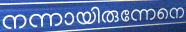
നന്നായിരുന്നേനെ